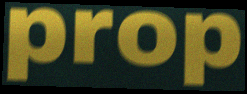
prop